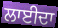
ਲਾਈਦਾ